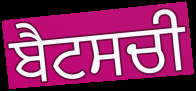
ਬੈਟਸਚੀ